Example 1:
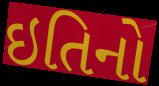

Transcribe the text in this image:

ઇતિનો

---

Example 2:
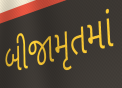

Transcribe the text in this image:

બીજામૃતમાં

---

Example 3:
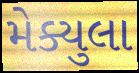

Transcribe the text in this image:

મેક્યુલા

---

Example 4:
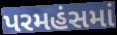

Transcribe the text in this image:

પરમહંસમાં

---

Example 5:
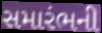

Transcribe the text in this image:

સમારંભની